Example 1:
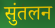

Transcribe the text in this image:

सुंतलन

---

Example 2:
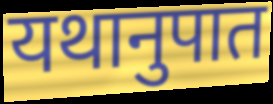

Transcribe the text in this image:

यथानुपात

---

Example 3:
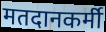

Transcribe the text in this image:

मतदानकर्मी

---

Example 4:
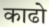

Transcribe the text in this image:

काढो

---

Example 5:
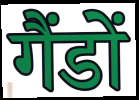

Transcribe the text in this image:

गैंडों